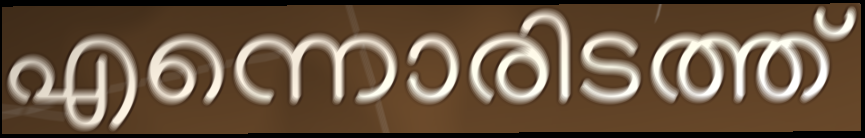
എന്നൊരിടത്ത്